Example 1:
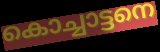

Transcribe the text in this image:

കൊച്ചാട്ടനെ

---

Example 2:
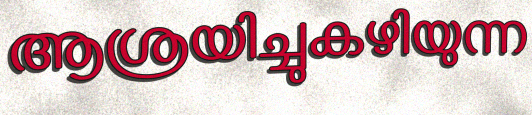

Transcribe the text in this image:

ആശ്രയിച്ചുകഴിയുന്ന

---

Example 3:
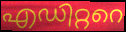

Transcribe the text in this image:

എഡിറ്ററെ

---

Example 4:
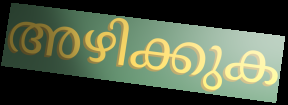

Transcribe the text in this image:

അഴിക്കുക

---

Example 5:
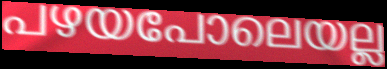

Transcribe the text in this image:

പഴയപോലെയല്ല